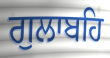
ਗੁਲਾਬਹਿ